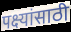
पक्ष्यांसाठी